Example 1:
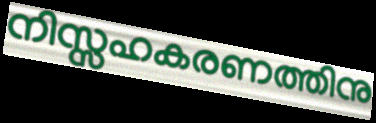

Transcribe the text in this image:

നിസ്സഹകരണത്തിനു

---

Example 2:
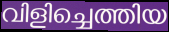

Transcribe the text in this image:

വിളിച്ചെത്തിയ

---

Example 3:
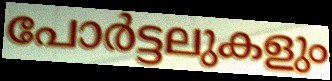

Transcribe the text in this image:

പോർട്ടലുകളും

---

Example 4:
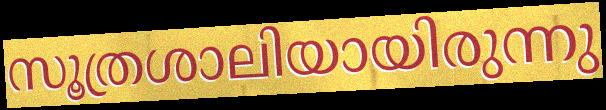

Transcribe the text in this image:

സൂത്രശാലിയായിരുന്നു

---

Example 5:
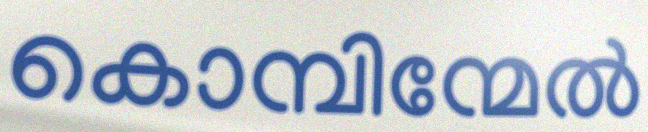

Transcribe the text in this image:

കൊമ്പിന്മേൽ